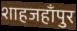
शाहजहाँपुर